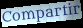
Compartir